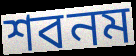
শবনম